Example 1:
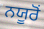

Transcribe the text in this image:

ਨਯੂਰੋਂ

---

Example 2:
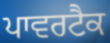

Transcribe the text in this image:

ਪਾਵਰਟੈਕ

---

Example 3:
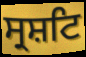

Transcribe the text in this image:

ਸ੍ਰਸ਼ਟਿ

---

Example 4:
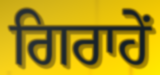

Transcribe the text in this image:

ਗਿਰਾਹੇਂ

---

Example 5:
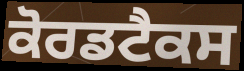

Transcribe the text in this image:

ਕੋਰਡਟੈਕਸ